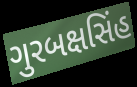
ગુરબક્ષસિંહ